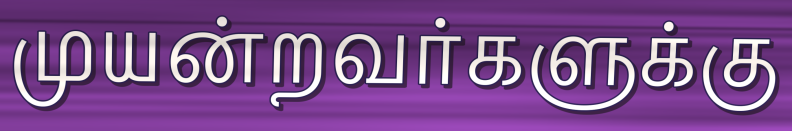
முயன்றவர்களுக்கு